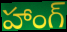
హాంగ్